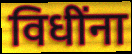
विधींना